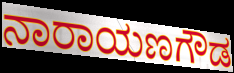
ನಾರಾಯಣಗೌಡ